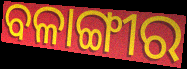
ବଳାଙ୍ଗୀର